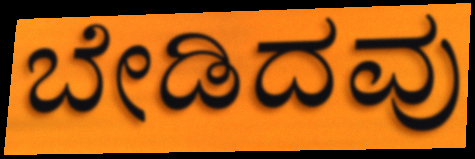
ಬೇಡಿದವು